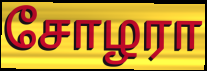
சோழரா